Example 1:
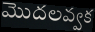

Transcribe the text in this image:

మొదలవ్వక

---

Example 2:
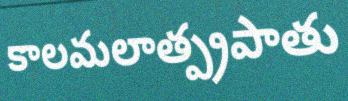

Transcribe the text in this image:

కాలమలాత్ప్రపాతు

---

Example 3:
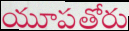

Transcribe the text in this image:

యూపతోరు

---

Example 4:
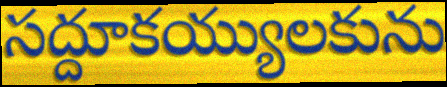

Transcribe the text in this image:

సద్దూకయ్యులకును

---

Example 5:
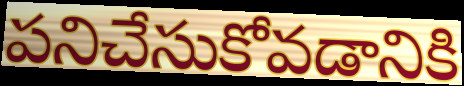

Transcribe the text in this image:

పనిచేసుకోవడానికి